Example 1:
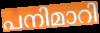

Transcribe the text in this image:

പനിമാറി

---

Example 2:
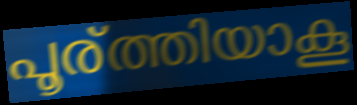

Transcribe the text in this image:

പൂര്ത്തിയാകൂ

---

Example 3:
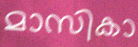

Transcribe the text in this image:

മാസികാ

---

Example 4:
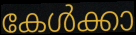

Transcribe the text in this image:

കേൾക്കാ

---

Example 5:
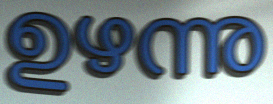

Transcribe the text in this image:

ഉഴന്നു